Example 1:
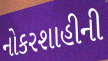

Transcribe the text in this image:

નોકરશાહીની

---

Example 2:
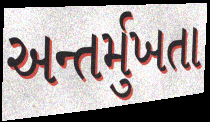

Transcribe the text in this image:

અન્તર્મુખતા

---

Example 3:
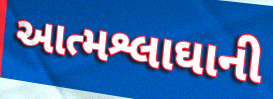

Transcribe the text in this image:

આત્મશ્લાઘાની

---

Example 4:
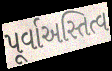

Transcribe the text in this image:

પૂર્વાઅસ્તિત્વ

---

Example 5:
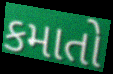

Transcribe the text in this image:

કમાતો